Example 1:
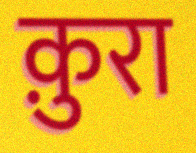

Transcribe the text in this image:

क़ुरा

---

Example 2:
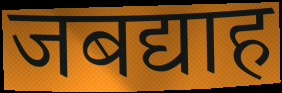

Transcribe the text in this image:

जबद्याह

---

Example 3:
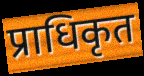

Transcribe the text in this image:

प्राधिकृत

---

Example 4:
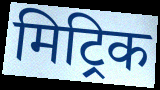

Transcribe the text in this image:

मिट्रिक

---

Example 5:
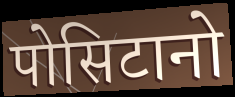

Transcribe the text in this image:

पोसिटानो